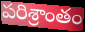
పరిశ్రాంతం